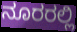
ನೂರರಲ್ಲಿ